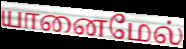
யானைமேல்